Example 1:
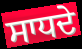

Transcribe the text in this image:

ਸਾਧਦੇ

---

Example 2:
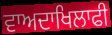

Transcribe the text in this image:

ਵਾਅਦਾਖਿਲਾਫੀ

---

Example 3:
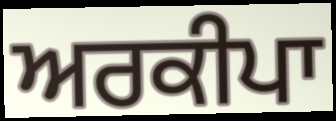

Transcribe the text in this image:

ਅਰਕੀਪਾ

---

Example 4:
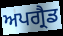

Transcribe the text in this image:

ਅਪਗ੍ਰੈਡ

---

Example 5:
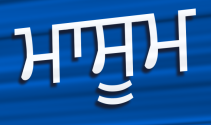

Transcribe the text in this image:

ਮਾਸੂਮ